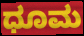
ಧೂಮ